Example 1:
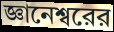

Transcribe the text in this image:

জ্ঞানেশ্বরের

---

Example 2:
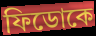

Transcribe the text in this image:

ফিডোকে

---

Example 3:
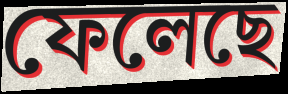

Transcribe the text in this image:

ফেলেছে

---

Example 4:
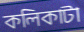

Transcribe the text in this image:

কলিকাটা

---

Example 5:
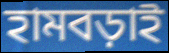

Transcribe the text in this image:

হামবড়াই